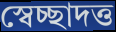
স্বেচ্ছাদত্ত